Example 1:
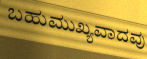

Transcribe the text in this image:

ಬಹುಮುಖ್ಯವಾದವು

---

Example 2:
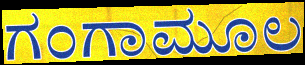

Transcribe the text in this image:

ಗಂಗಾಮೂಲ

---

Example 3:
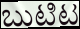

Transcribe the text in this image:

ಬುಟಿಟ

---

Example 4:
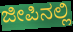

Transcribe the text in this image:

ಜೀಪಿನಲ್ಲಿ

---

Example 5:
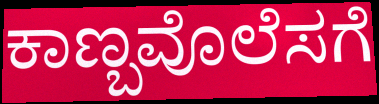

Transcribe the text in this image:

ಕಾಣ್ಬವೊಲೆಸಗೆ